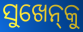
ସୁଖେନ୍‌କୁ